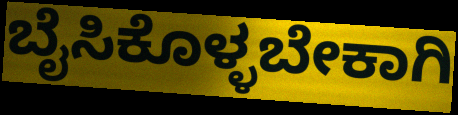
ಬೈಸಿಕೊಳ್ಳಬೇಕಾಗಿ